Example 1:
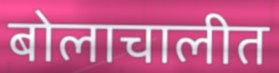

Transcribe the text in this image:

बोलाचालीत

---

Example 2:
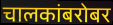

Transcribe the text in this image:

चालकांबरोबर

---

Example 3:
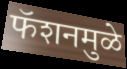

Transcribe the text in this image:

फॅशनमुळे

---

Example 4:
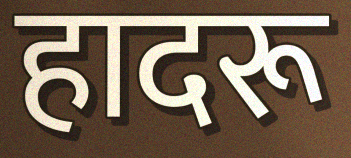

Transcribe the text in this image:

हादरू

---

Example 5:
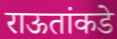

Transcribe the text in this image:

राऊतांकडे